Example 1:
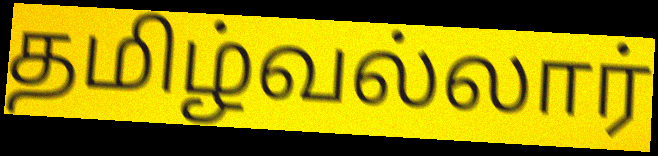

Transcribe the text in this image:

தமிழ்வல்லார்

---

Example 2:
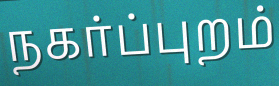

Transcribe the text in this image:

நகர்ப்புறம்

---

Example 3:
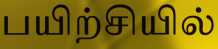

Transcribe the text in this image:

பயிற்சியில்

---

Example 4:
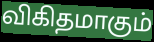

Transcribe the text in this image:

விகிதமாகும்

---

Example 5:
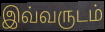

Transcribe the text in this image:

இவ்வருடம்